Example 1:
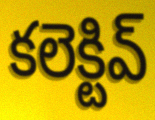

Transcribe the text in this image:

కలెక్టివ్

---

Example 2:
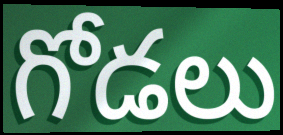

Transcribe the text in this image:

గోడలు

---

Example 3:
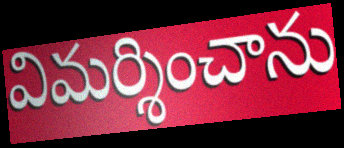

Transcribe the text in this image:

విమర్శించాను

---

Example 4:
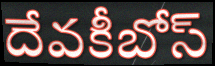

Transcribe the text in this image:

దేవకీబోస్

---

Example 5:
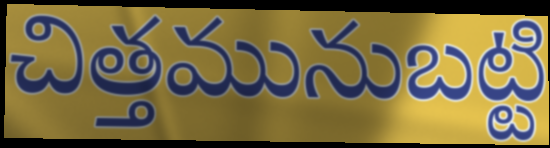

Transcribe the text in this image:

చిత్తమునుబట్టి